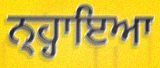
ਨ੍ਹ੍ਹਾਇਆ